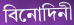
বিনোদিনী